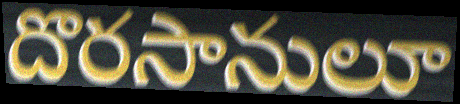
దొరసానులూ